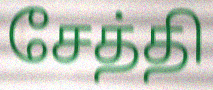
சேத்தி